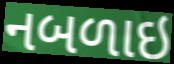
નબળાઇ